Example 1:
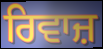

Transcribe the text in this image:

ਰਿਵਾਜ਼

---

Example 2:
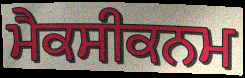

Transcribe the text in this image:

ਮੈਕਸੀਕਨਮ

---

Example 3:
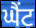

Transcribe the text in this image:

ਘੈਂਟ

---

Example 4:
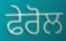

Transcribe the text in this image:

ਫੇਰੋਲ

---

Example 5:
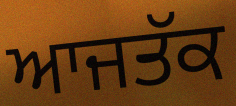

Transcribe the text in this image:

ਆਜਤੱਕ